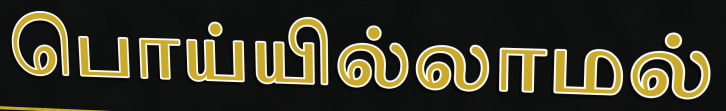
பொய்யில்லாமல்